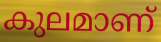
കുലമാണ്